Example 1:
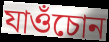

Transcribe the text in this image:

যাওঁচোন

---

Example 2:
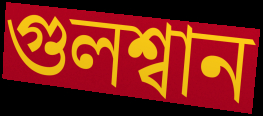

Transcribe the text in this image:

গুলশ্বান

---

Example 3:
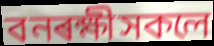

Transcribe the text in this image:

বনৰক্ষীসকলে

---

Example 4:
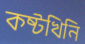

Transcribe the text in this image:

কষ্টখিনি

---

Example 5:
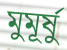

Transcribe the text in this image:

মুমূৰ্ষু